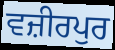
ਵਜ਼ੀਰਪੁਰ